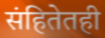
संहितेतही